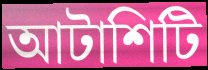
আটাশিটি